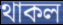
থাকল